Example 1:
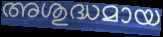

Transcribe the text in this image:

അശുദ്ധമായ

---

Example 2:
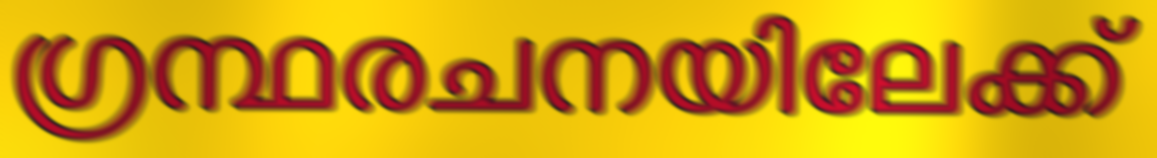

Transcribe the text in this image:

ഗ്രന്ഥരചനയിലേക്ക്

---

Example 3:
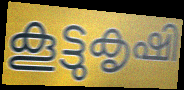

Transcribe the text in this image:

കൂട്ടുകൃഷി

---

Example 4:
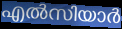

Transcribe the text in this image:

എൽസിയാർ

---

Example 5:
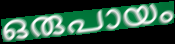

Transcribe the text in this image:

ഒരുപായം